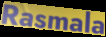
Rasmala